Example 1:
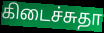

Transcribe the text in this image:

கிடைச்சுதா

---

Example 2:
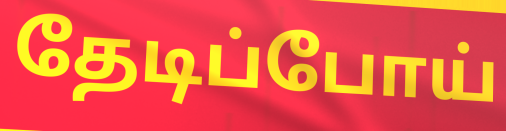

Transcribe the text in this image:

தேடிப்போய்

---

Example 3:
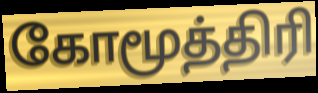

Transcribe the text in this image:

கோமூத்திரி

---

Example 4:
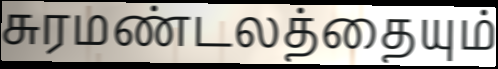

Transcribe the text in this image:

சுரமண்டலத்தையும்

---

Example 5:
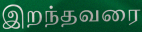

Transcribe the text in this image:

இறந்தவரை